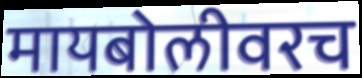
मायबोलीवरच